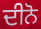
ਦੀਨੋ